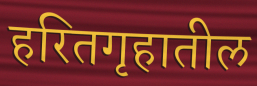
हरितगृहातील